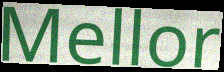
Mellor